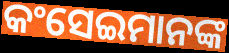
କଂସେଇମାନଙ୍କ